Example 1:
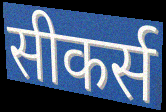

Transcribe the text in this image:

सीकर्स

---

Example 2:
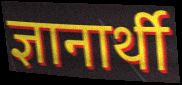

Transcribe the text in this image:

ज्ञानार्थी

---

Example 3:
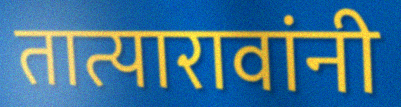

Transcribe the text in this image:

तात्यारावांनी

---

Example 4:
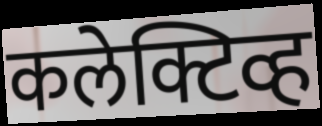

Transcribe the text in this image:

कलेक्टिव्ह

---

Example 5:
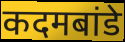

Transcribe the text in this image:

कदमबांडे